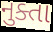
નુક્તા